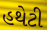
હથેટી